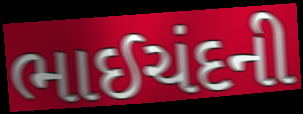
ભાઈચંદની